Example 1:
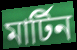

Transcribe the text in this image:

মার্টিন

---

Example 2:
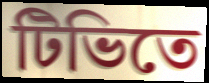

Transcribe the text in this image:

টিভিতে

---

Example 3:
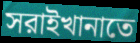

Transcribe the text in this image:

সরাইখানাতে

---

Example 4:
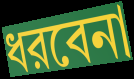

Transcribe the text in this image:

ধরবেনা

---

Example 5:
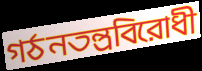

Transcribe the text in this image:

গঠনতন্ত্রবিরোধী